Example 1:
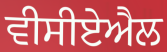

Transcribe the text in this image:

ਵੀਸੀਏਐਲ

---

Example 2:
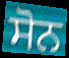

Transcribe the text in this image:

ਸੋਨ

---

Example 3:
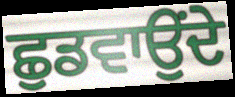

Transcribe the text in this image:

ਛੁਡਵਾਉਂਦੇ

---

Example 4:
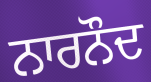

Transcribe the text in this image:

ਨਾਰਨੌਦ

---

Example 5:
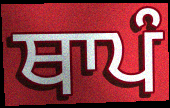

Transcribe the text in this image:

ਥਾਪੰ